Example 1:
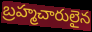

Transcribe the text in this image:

బ్రహ్మచారులైన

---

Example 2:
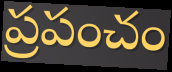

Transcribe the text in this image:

ప్రపంచం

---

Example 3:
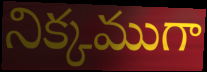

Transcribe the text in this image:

నిక్కముగా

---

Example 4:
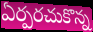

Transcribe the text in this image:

ఏర్పరచుకొన్న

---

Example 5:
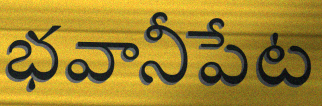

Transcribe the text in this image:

భవానీపేట